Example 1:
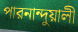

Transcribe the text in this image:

পারনান্দুয়ালী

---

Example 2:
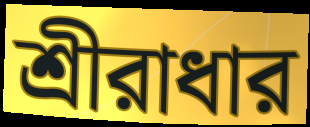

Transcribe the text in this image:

শ্রীরাধার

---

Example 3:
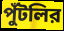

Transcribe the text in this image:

পুঁটলির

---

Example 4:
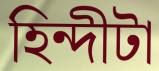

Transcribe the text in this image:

হিন্দীটা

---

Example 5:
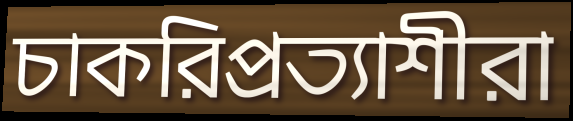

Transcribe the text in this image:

চাকরিপ্রত্যাশীরা